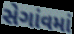
સેગાંવમાં